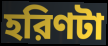
হরিণটা